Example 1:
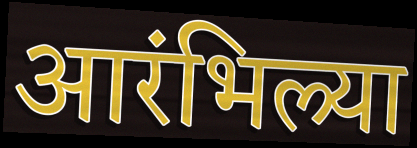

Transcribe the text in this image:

आरंभिल्या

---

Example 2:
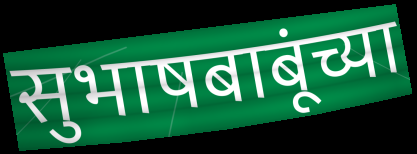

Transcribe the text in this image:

सुभाषबाबूंच्या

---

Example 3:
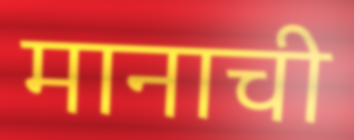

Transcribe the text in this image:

मानाची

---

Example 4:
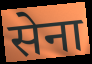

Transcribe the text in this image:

सेना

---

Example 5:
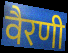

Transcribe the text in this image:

वैरणी